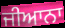
ਜੀਆਨਾ